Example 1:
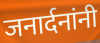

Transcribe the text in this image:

जनार्दनांनी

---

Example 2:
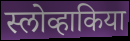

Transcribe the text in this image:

स्लोव्हाकिया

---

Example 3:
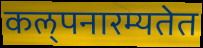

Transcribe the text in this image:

कल्पनारम्यतेत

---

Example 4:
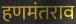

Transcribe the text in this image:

हणमंतराव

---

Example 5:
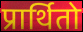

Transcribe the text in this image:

प्रार्थितो